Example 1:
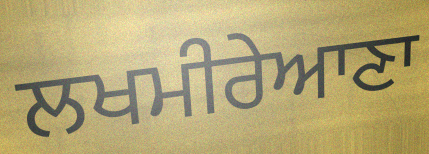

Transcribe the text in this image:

ਲਖਮੀਰੇਆਣਾ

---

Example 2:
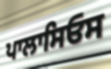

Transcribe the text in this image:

ਪਾਲਾਸਿਓਸ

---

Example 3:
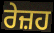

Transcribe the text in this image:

ਰੇਜ਼ਹ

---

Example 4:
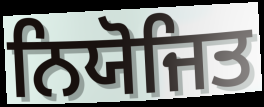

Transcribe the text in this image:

ਨਿਯੋਜਿਤ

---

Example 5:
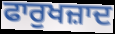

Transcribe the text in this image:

ਫਾਰੁਖਜ਼ਾਦ